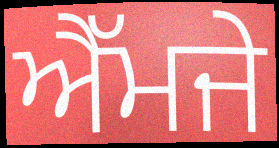
ਐੱਮਜੇ